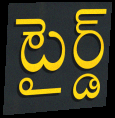
టైర్డ్